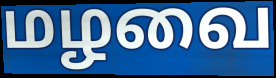
மழவை